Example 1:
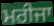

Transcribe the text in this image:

ਮਰੀਜਾ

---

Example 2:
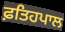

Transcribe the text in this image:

ਫ਼ਤਿਹਪਾਲ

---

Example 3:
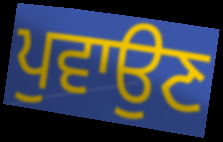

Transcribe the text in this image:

ਪੁਵਾਉਣ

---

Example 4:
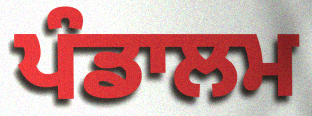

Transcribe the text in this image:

ਪੰਡਾਲਮ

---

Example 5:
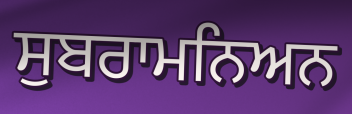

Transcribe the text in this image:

ਸੁਬਰਾਮਨਿਅਨ